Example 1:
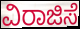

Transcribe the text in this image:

ವಿರಾಜಿಸೆ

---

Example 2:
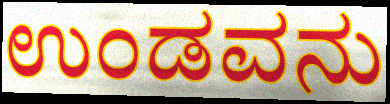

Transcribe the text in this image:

ಉಂಡವನು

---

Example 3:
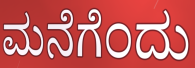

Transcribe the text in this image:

ಮನೆಗೆಂದು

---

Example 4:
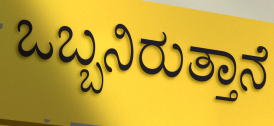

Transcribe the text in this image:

ಒಬ್ಬನಿರುತ್ತಾನೆ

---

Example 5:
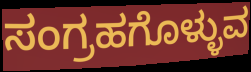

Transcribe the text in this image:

ಸಂಗ್ರಹಗೊಳ್ಳುವ